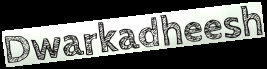
Dwarkadheesh